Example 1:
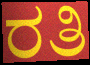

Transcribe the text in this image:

ರತಿ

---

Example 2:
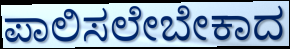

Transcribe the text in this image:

ಪಾಲಿಸಲೇಬೇಕಾದ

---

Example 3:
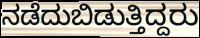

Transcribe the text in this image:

ನಡೆದುಬಿಡುತ್ತಿದ್ದರು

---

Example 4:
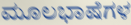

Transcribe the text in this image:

ಮೂಲಭಾಷೆಗಳ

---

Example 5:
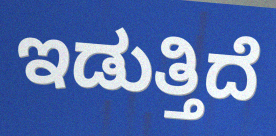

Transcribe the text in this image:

ಇಡುತ್ತಿದೆ